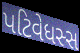
પટિવેધસ્સ